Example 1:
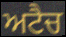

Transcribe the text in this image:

ਅਟੈਚ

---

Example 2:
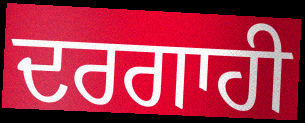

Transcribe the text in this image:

ਦਰਗਾਹੀ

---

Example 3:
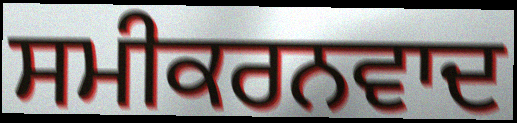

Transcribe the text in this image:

ਸਮੀਕਰਨਵਾਦ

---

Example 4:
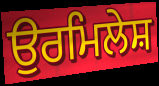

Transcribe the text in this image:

ਉਰਮਿਲੇਸ਼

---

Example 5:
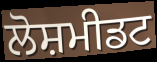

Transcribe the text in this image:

ਲੋਸ਼ਮੀਡਟ